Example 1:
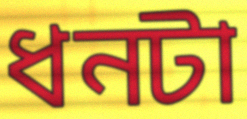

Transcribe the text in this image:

ধনটা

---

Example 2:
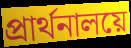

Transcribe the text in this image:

প্রার্থনালয়ে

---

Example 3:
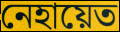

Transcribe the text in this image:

নেহায়েত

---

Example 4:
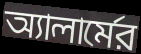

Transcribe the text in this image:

অ্যালার্মের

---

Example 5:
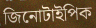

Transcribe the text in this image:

জিনোটাইপিক